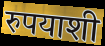
रुपयाशी